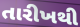
તારીખથી